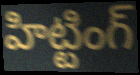
హిట్టింగ్